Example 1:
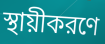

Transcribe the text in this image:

স্থায়ীকরণে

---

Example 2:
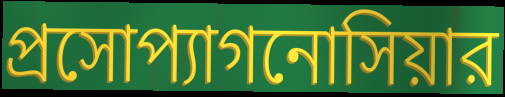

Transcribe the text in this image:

প্রসোপ্যাগনোসিয়ার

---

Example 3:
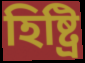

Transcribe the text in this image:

হিষ্ট্রি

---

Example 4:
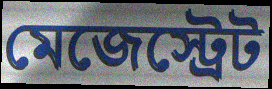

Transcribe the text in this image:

মেজেস্ট্রেট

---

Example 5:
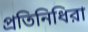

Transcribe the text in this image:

প্রতিনিধিরা